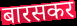
बारसकर